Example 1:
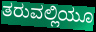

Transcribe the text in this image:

ತರುವಲ್ಲಿಯೂ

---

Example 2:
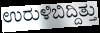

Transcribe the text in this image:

ಉರುಳಿಬಿದ್ದಿತ್ತು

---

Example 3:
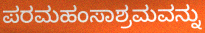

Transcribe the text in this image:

ಪರಮಹಂಸಾಶ್ರಮವನ್ನು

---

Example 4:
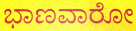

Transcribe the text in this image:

ಭಾಣವಾರೋ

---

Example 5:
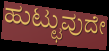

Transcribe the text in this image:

ಹುಟ್ಟುವುದೇ